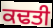
ਕਢਤੀ